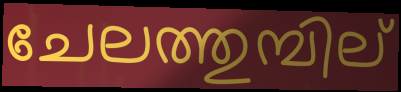
ചേലത്തുമ്പില്